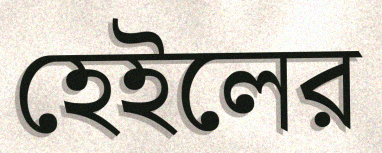
হেইলের